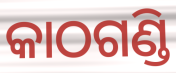
କାଠଗଣ୍ଡି